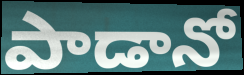
పాడానో